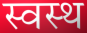
स्वस्थ